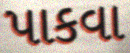
પાકવા